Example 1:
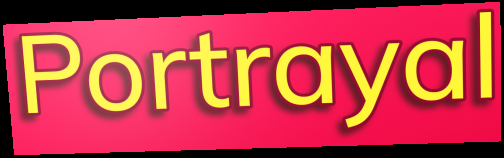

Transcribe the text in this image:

Portrayal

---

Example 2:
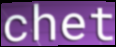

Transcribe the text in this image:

chet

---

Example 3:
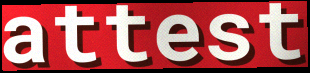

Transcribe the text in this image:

attest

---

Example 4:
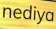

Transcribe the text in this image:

nediya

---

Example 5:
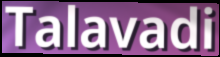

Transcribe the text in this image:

Talavadi